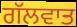
ਗੱਲਵਾਤ